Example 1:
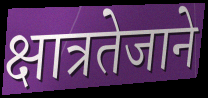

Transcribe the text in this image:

क्षात्रतेजाने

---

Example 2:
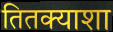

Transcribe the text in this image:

तितक्याशा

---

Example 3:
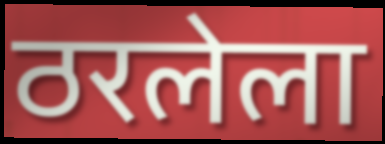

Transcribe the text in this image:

ठरलेला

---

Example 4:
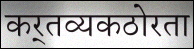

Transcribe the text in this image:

कर्तव्यकठोरता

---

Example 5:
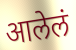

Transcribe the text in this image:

आलेलं